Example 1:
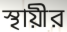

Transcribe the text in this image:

স্থায়ীর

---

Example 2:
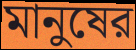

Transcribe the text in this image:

মানুষের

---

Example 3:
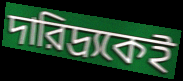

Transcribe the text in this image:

দারিদ্র্যকেই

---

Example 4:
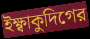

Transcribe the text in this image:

ইক্ষ্বাকুদিগের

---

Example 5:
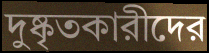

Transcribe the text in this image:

দুষ্কৃতকারীদের